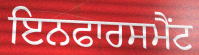
ਇਨਫਾਰਸਮੈਂਟ